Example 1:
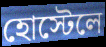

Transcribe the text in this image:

হোস্টেলে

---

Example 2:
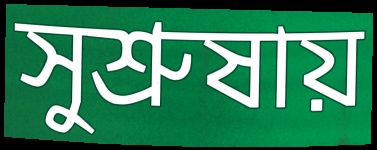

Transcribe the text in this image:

সুশ্রুষায়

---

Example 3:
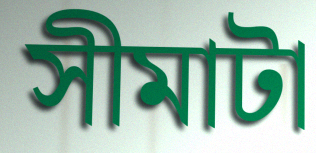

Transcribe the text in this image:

সীমাটা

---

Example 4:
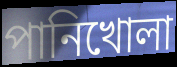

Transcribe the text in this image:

পানিখোলা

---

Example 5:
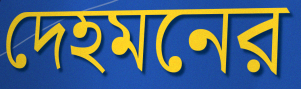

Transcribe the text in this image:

দেহমনের